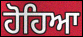
ਹੋਹਿਆ